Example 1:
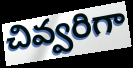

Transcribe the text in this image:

చివ్వరిగా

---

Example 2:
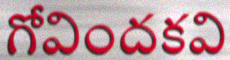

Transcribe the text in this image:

గోవిందకవి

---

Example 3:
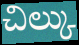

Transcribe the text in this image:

చిల్కు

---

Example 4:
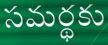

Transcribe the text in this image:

సమర్థకు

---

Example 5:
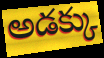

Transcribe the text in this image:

అడక్కు